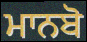
ਮਾਨਬੋ